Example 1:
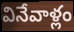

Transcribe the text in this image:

వినేవాళ్లం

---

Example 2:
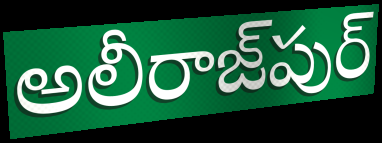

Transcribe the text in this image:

అలీరాజ్‌పుర్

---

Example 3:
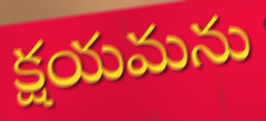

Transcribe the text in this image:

క్షయమను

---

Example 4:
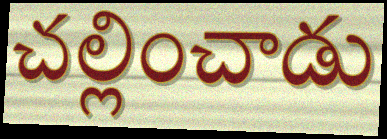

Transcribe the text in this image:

చల్లించాడు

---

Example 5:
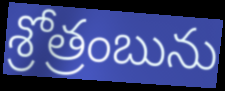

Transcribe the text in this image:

శ్రోత్రంబును